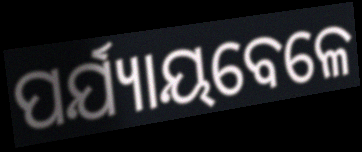
ପର୍ଯ୍ୟାୟବେଳେ